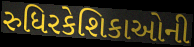
રુધિરકેશિકાઓની